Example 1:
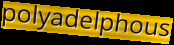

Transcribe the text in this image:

polyadelphous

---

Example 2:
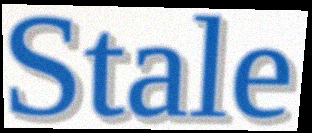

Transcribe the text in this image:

Stale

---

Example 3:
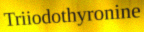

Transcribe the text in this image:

Triiodothyronine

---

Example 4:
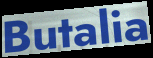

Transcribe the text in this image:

Butalia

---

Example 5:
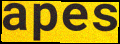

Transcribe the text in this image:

apes